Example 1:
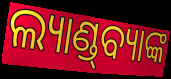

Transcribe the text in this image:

ଲ୍ୟାଣ୍ଡ୍‌ବ୍ୟାଙ୍କ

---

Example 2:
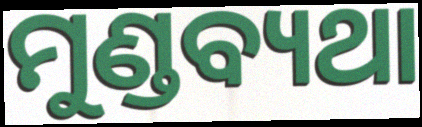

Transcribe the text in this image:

ମୁଣ୍ଡବ୍ୟଥା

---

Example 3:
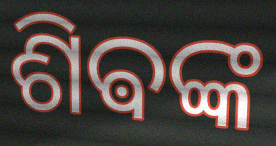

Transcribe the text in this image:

ଶିଵଙ୍କ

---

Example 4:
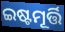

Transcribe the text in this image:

ଇଷ୍ଟମୂର୍ତ୍ତି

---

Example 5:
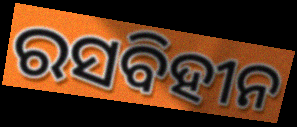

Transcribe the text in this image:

ରସବିହୀନ